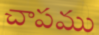
చాపము